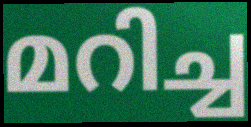
മറിച്ച